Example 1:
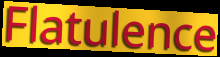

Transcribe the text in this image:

Flatulence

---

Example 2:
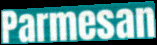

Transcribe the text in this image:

Parmesan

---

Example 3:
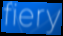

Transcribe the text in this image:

fiery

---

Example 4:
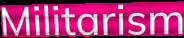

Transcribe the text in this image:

Militarism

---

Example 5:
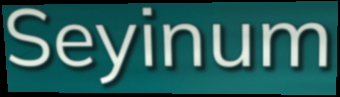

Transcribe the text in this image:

Seyinum